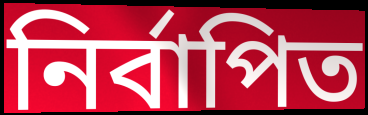
নির্বাপিত